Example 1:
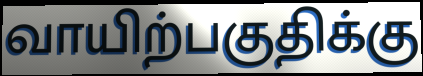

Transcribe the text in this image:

வாயிற்பகுதிக்கு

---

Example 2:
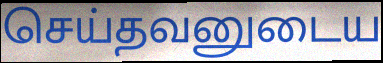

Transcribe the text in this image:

செய்தவனுடைய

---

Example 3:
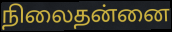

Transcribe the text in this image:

நிலைதன்னை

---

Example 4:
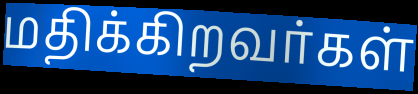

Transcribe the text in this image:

மதிக்கிறவர்கள்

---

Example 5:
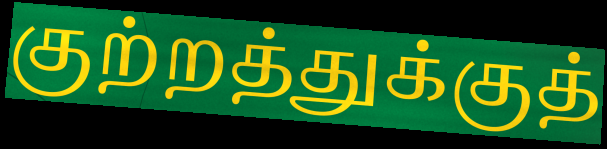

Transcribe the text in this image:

குற்றத்துக்குத்